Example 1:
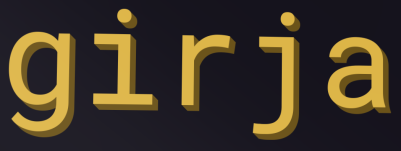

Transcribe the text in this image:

girja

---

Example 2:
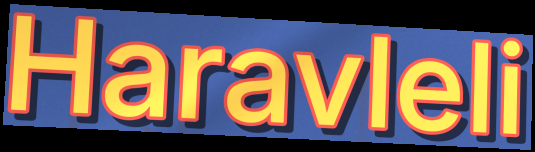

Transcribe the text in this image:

Haravleli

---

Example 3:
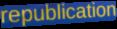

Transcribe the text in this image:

republication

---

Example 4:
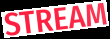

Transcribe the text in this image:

STREAM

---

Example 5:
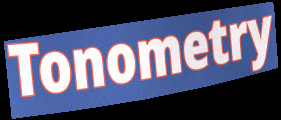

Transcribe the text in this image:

Tonometry